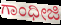
ಗಾಂಧೀಜಿ